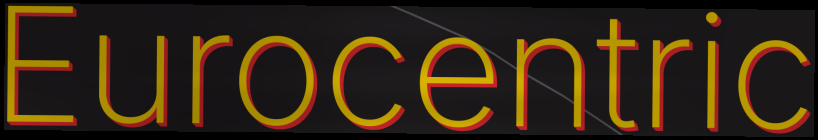
Eurocentric